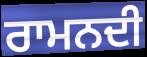
ਰਾਮਨਦੀ